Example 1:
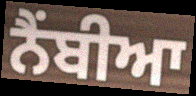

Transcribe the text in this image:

ਨੈਂਬੀਆ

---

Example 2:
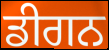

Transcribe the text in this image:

ਡੀਗਨ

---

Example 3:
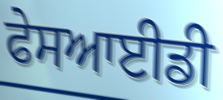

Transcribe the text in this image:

ਫੇਸਆਈਡੀ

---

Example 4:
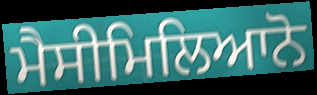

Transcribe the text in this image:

ਮੈਸੀਮਿਲਿਆਨੋ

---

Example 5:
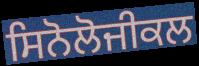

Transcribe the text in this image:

ਸਿਨੋਲੋਜੀਕਲ